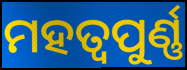
ମହତ୍ୱପୁର୍ଣ୍ଣ